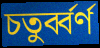
চতুর্ব্বর্ণ